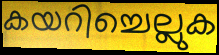
കയറിച്ചെല്ലുക